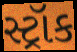
સ્ટ્રૉક